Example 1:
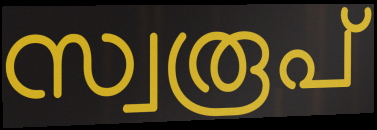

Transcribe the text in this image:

സ്വരൂപ്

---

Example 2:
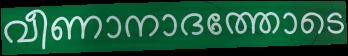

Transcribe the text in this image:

വീണാനാദത്തോടെ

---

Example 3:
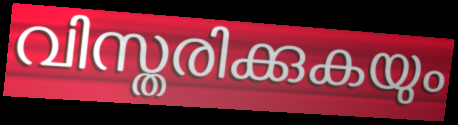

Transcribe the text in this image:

വിസ്തരിക്കുകയും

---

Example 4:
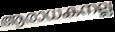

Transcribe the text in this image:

ആരാധകനല്ല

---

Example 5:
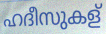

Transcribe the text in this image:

ഹദീസുകള്